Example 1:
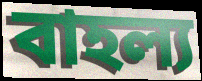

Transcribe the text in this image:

বাহল্য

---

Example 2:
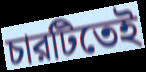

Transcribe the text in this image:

চারটিতেই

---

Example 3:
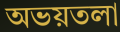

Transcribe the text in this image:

অভয়তলা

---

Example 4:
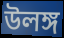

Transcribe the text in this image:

উলঙ্গ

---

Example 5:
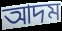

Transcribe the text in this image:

আদম